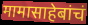
मामासाहेबांचं